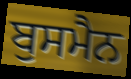
ਬੁਸਮੈਨ